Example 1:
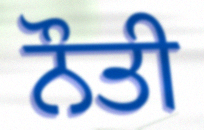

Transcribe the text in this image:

ਨੌਤੀ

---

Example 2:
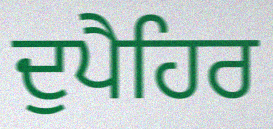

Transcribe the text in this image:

ਦੁਪੈਹਿਰ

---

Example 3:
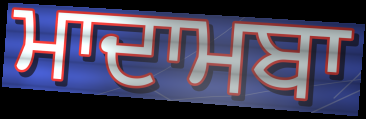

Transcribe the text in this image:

ਮਾਦਾਮਬਾ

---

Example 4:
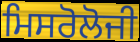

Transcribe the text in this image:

ਮਿਸਰੋਲੋਜੀ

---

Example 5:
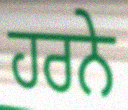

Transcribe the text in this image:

ਹਰਨੇ